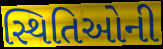
સ્થિતિઓની